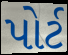
પોર્ટ